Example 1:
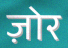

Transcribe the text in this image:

ज़ोर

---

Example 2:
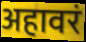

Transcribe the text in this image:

अहावरं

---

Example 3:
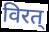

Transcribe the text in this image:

विरत्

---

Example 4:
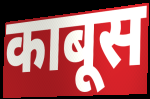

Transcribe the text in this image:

काबूस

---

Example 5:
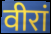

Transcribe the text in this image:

वीरां